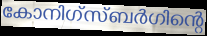
കോനിഗ്സ്ബർഗിന്റെ